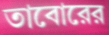
তাবোরের